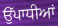
ਉੱਪਾਧੀਆਂ